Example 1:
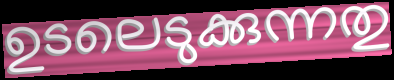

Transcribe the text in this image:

ഉടലെടുക്കുന്നതു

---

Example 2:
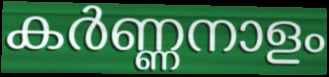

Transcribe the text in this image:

കർണ്ണനാളം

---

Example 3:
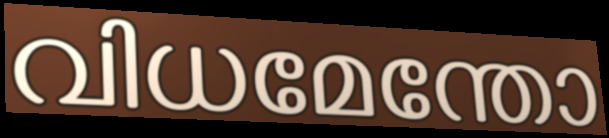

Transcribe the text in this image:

വിധമേന്തോ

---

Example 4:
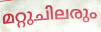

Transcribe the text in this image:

മറ്റുചിലരും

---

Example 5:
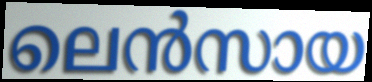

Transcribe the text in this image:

ലെൻസായ